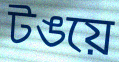
টঙয়ে